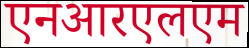
एनआरएलएम